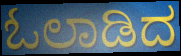
ಓಲಾಡಿದ